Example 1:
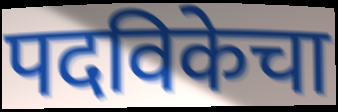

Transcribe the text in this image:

पदविकेचा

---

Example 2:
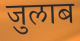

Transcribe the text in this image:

जुलाब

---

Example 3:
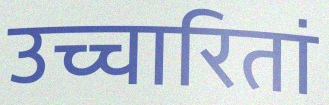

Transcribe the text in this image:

उच्चारितां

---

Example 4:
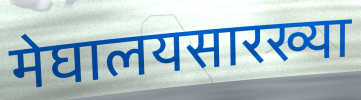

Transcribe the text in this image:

मेघालयसारख्या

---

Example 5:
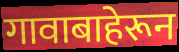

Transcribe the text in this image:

गावाबाहेरून